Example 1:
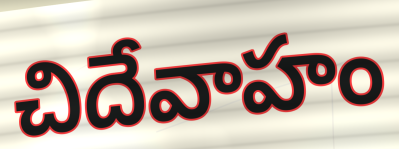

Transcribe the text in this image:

చిదేవాహం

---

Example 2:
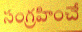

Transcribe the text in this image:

సంగ్రహించే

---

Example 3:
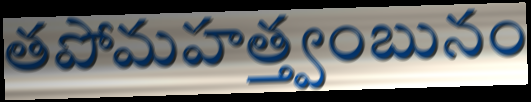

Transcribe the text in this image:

తపోమహత్త్వంబునం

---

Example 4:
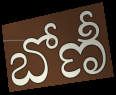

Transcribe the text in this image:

బోణీ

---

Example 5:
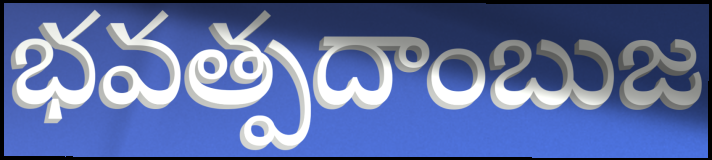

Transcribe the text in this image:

భవత్పదాంబుజ